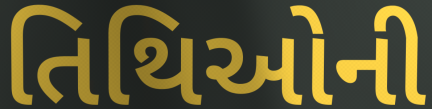
તિથિઓની